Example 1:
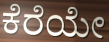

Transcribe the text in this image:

ಕೆರೆಯೇ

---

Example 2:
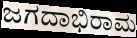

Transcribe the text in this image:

ಜಗದಾಭಿರಾಮ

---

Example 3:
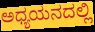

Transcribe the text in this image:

ಅಧ್ಯಯನದಲ್ಲಿ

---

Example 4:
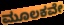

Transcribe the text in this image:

ಮೂಲಕವೇ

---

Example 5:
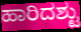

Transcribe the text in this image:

ಹಾರಿದಶ್ಟು